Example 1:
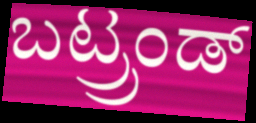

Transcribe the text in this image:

ಬಟ್ರ್ರಂಡ್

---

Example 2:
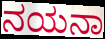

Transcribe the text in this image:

ನಯನಾ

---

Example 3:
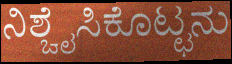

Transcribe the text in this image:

ನಿಶ್ಚೈಸಿಕೊಟ್ಟನು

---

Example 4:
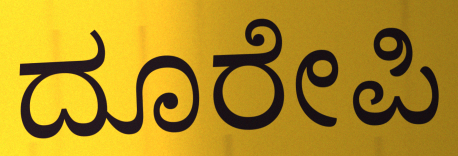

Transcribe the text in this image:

ದೂರೇಪಿ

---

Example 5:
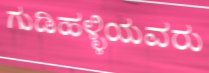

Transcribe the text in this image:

ಗುಡಿಹಳ್ಳಿಯವರು